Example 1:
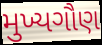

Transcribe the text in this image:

મુખ્યગૌણ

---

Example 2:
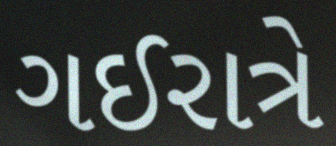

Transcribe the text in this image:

ગઈરાત્રે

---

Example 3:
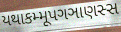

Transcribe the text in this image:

યથાકમ્મૂપગઞાણસ્સ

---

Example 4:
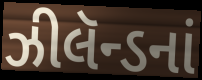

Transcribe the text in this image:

ઝીલૅન્ડનાં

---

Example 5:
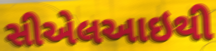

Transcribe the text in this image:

સીએલઆઇથી